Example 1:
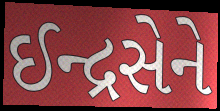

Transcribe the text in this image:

ઈન્દ્રસેને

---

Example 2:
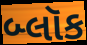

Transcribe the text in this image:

બ્લૉક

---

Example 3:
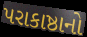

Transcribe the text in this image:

પરાકાષ્ઠાનો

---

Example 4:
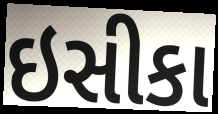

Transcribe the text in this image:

ઇસીકા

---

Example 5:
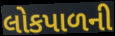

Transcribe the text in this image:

લોકપાળની